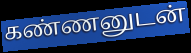
கண்ணனுடன்